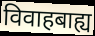
विवाहबाह्य